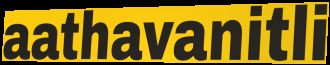
aathavanitli